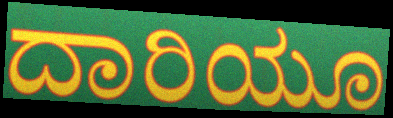
ದಾರಿಯೂ